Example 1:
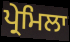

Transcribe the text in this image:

ਪ੍ਰੇਮਿਲਾ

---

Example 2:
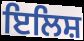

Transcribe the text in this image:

ਇਲਿਸ਼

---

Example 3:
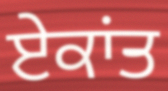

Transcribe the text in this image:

ਏਕਾਂਤ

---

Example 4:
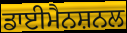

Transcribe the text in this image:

ਡਾਈਮੈਨਸ਼ਨਲ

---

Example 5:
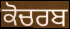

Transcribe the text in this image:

ਕੋਚਰਬ